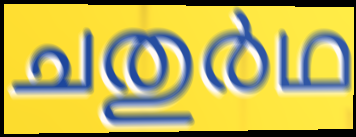
ചതുർഥ